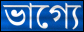
ভাগ্যে